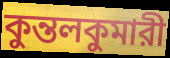
কুন্তলকুমারী